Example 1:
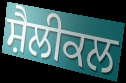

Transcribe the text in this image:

ਸ਼ੈਲੀਕਲ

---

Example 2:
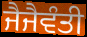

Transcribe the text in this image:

ਜੈਜੈਵੰਤੀ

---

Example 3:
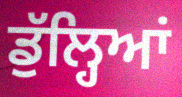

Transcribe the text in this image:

ਡੁੱਲ੍ਹਿਆਂ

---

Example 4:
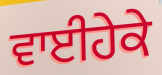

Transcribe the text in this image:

ਵਾਈਹੇਕੇ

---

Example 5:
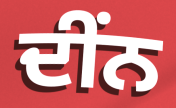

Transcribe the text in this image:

ਦੀਂਨ